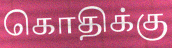
கொதிக்கு